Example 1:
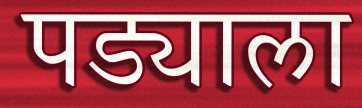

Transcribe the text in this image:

पड्याला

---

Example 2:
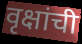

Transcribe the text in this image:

वृक्षांची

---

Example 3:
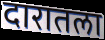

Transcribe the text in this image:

दारातला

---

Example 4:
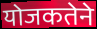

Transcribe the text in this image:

योजकतेने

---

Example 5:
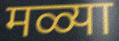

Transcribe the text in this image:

मळ्या